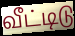
வீட்டிடு